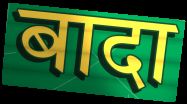
बादा